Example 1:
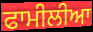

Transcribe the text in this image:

ਫਾਮੀਲੀਆ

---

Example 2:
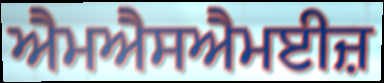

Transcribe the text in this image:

ਐਮਐਸਐਮਈਜ਼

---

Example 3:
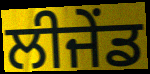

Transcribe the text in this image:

ਲੀਜੇਂਡ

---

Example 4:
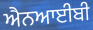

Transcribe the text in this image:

ਐਨਆਈਬੀ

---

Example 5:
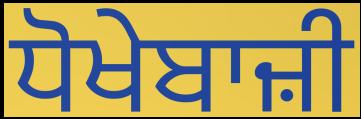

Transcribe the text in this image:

ਧੋਖੇਬਾਜ਼ੀ